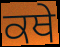
ਕਥੇ